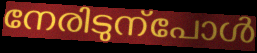
നേരിടുന്പോൾ